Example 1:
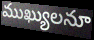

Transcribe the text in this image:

ముఖ్యులనూ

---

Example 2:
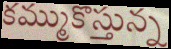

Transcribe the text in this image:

కమ్ముకొస్తున్న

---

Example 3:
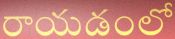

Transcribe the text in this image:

రాయడంలో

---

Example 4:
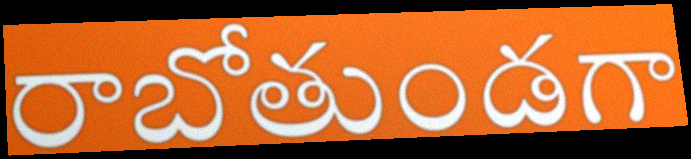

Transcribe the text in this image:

రాబోతుండగా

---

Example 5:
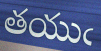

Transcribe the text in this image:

తయుఁ